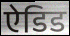
ऐडिड